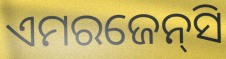
ଏମରଜେନ୍‌ସି